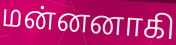
மன்னனாகி